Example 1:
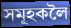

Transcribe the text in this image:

সমূহকলৈ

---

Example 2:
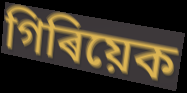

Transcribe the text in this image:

গিৰিয়েক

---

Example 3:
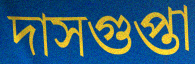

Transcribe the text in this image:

দাসগুপ্তা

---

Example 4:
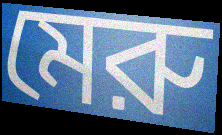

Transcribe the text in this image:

মেৰু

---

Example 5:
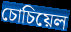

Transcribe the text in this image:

চোচিয়েল